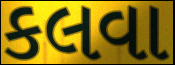
કલવા